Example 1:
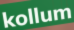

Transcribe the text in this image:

kollum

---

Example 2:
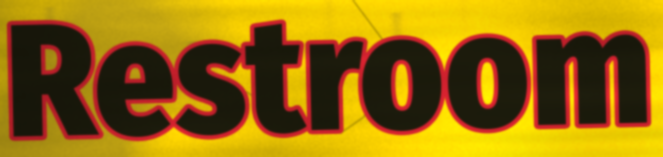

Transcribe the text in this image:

Restroom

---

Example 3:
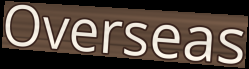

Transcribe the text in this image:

Overseas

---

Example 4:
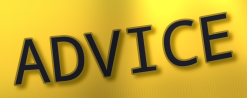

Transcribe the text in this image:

ADVICE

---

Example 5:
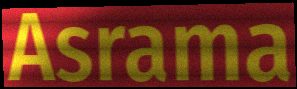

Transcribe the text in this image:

Asrama